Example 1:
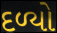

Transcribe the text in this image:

દળ્યો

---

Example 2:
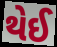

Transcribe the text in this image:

થેઈ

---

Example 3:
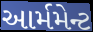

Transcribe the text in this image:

આર્મમેન્ટ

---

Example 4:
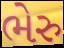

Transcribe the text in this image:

ભેરુ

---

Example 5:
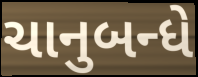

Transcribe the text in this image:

ચાનુબન્ધે